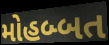
મોહબ્બત